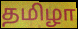
தமிழா